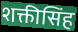
शक्तीसिंह